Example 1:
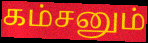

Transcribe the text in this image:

கம்சனும்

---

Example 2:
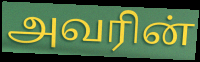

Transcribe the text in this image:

அவரின்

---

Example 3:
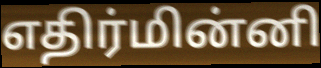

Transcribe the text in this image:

எதிர்மின்னி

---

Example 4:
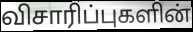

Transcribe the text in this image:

விசாரிப்புகளின்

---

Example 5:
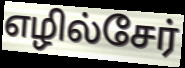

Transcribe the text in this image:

எழில்சேர்